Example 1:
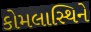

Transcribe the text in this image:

કોમલાસ્થિને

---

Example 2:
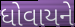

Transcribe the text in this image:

ધોવાયને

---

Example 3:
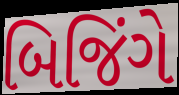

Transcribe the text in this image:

બિજિંગે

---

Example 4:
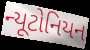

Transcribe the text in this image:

ન્યૂટોનિયન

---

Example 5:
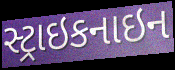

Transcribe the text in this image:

સ્ટ્રાઇકનાઇન